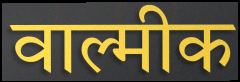
वाल्मीक